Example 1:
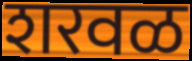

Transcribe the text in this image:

शरवळ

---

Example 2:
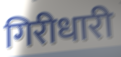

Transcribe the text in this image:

गिरीधारी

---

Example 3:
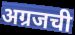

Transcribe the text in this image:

अग्रजची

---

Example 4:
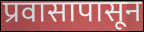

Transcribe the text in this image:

प्रवासापासून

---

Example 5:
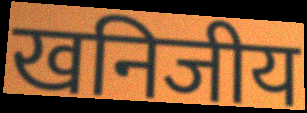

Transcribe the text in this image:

खनिजीय